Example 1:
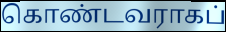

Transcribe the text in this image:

கொண்டவராகப்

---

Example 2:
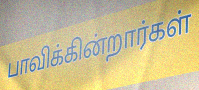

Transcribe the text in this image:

பாவிக்கின்றார்கள்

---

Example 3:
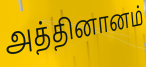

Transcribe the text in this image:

அத்தினானம்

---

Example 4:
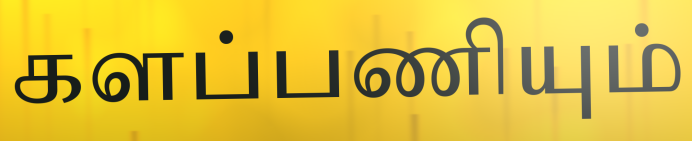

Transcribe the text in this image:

களப்பணியும்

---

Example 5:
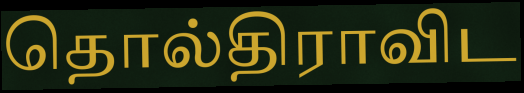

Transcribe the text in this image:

தொல்திராவிட